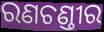
ରଣଚଣ୍ଡୀର